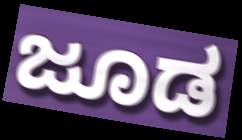
ಜೂಡ